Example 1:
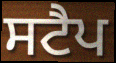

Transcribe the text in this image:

ਸਟੈਪ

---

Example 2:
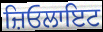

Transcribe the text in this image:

ਜ਼ਿਓਲਾਇਟ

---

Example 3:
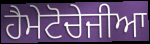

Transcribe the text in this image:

ਹੈਮੇਟੋਚੇਜੀਆ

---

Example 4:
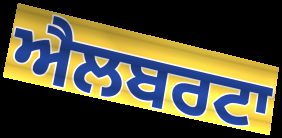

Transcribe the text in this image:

ਐਲਬਰਟਾ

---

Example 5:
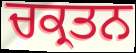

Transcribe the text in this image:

ਚਕ੍ਰਤਨ